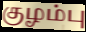
குழம்பு